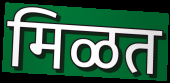
मिळत